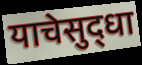
याचेसुद्धा